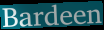
Bardeen